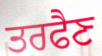
ਤਰਫੈਣ